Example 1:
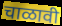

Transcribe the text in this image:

चाळावी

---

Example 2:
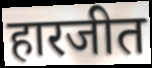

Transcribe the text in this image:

हारजीत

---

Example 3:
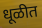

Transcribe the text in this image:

धूळीत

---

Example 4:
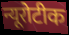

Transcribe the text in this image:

न्यूरोटीक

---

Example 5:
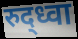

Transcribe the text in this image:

रुद्ध्वा